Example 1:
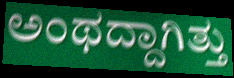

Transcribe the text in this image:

ಅಂಥದ್ದಾಗಿತ್ತು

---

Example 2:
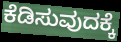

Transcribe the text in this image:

ಕೆಡಿಸುವುದಕ್ಕೆ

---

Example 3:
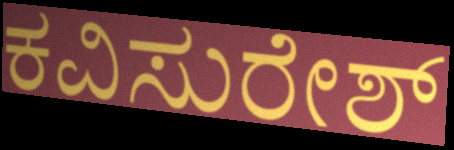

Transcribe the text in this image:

ಕವಿಸುರೇಶ್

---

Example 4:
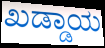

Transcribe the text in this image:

ಖಡ್ಡಾಯ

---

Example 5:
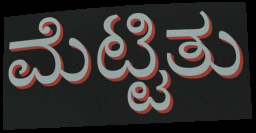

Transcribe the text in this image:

ಮೆಟ್ಟಿತು